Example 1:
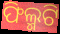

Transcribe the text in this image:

ଫିଲ୍ମଟି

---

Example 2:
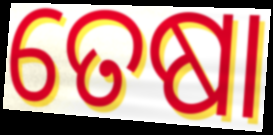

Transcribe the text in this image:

ତେଷା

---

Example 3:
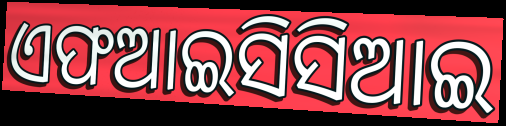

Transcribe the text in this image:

ଏଫଆଇସିସିଆଇ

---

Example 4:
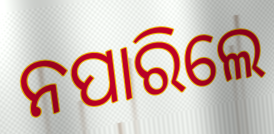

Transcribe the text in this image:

ନପାରିଲେ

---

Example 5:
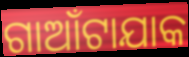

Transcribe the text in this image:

ଗାଆଁଟାଯାକ